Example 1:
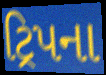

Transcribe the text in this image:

ટ્રિપના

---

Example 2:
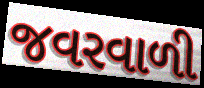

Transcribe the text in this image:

જવરવાળી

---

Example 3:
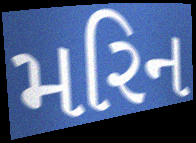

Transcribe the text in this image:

મરિન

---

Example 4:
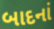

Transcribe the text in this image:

બાદનાં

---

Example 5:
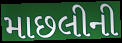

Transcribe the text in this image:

માછલીની